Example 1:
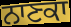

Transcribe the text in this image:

ਨਾਣਕਾ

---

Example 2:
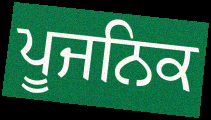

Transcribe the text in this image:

ਪੂਜਨਿਕ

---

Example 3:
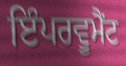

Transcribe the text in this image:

ਇੰਪਰਵੂਮੈਂਟ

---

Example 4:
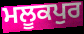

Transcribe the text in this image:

ਮਲੂਕਪੁਰ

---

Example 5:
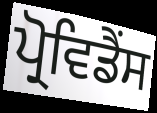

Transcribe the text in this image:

ਪ੍ਰੋਵਿਡੈਂਸ